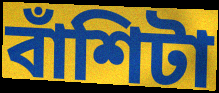
বাঁশিটা